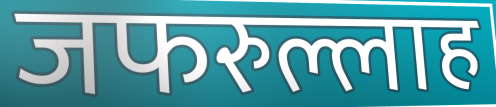
जफरुल्लाह